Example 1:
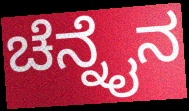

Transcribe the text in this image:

ಚೆನ್ನೈನ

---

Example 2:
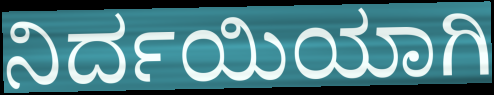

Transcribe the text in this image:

ನಿರ್ದಯಿಯಾಗಿ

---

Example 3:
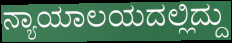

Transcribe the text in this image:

ನ್ಯಾಯಾಲಯದಲ್ಲಿದ್ದು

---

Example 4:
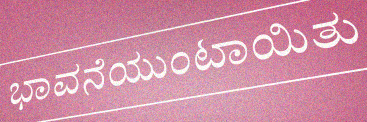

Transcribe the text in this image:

ಭಾವನೆಯುಂಟಾಯಿತು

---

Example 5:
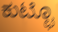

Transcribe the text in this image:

ಕುಟ್ಟೊ